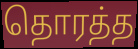
தொரத்த